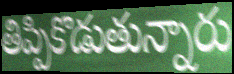
తిప్పికొడుతున్నారు